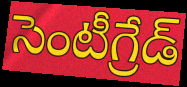
సెంటీగ్రేడ్